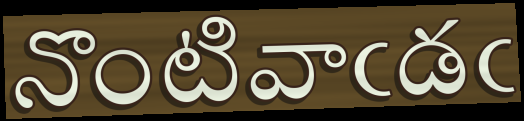
నొంటివాఁడఁ